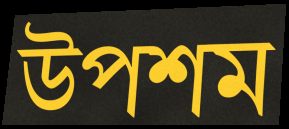
উপশম